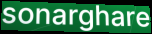
sonarghare